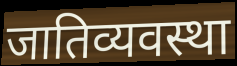
जातिव्यवस्था